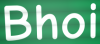
Bhoi